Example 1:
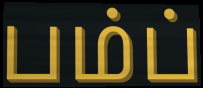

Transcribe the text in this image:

பம்ப்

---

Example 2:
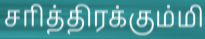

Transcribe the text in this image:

சரித்திரக்கும்மி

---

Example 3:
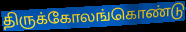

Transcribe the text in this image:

திருக்கோலங்கொண்டு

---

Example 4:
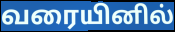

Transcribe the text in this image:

வரையினில்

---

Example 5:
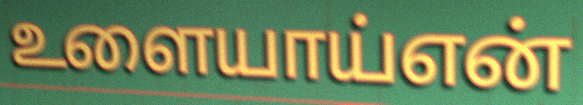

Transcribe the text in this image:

உளையாய்என்